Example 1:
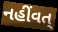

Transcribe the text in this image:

નહીંવત્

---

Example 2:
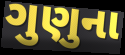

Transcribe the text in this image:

ગુણુના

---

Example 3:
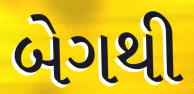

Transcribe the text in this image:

બેગથી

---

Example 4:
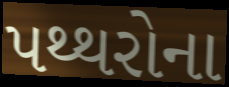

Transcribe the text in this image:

પથ્થરોના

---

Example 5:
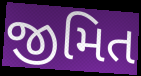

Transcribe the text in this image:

જીમિત